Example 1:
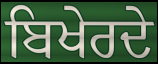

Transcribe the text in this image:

ਬਿਖੇਰਦੇ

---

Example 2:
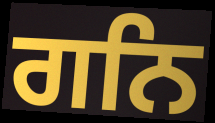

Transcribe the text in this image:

ਗਨਿ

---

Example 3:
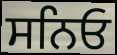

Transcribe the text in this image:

ਸਨਿਓ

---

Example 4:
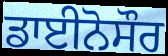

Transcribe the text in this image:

ਡਾਈਨੋਸੌਰ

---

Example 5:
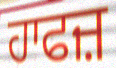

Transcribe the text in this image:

ਹਾਫਜ਼